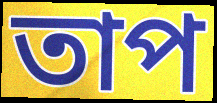
তাপ